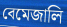
বেমেজালি